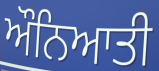
ਔਨਿਆਤੀ